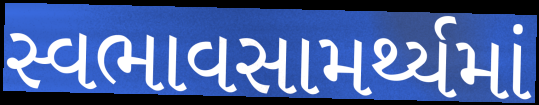
સ્વભાવસામર્થ્યમાં